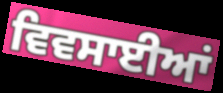
ਵਿਵਸਾਈਆਂ